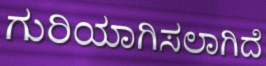
ಗುರಿಯಾಗಿಸಲಾಗಿದೆ